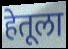
हेतूला